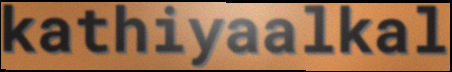
kathiyaalkal